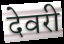
देवरी